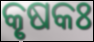
କୃଷକଃ